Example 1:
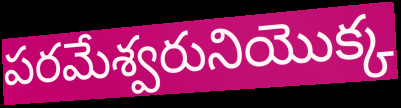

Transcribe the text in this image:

పరమేశ్వరునియొక్క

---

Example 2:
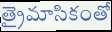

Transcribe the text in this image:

త్రైమాసికంతో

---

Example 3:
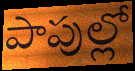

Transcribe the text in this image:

పాపుల్లో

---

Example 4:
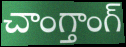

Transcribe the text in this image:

చాంగ్తాంగ్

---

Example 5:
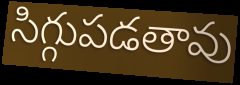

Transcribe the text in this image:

సిగ్గుపడతావు